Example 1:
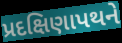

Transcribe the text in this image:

પ્રદક્ષિણાપથને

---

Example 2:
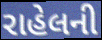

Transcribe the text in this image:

રાહેલની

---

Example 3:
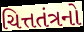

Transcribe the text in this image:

ચિત્તતંત્રનો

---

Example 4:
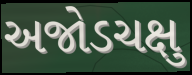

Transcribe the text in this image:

અજોડચક્ષુ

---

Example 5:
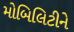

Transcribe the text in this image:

મોબિલિટીને